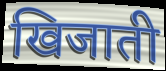
खिजाती